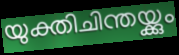
യുക്തിചിന്തയ്ക്കും